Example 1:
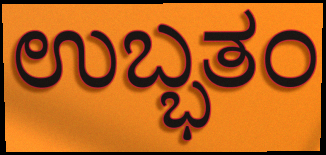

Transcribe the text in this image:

ಉಬ್ಭತಂ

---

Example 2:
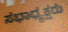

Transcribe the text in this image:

ಸಭಾಧ್ಯಕ್ಷರು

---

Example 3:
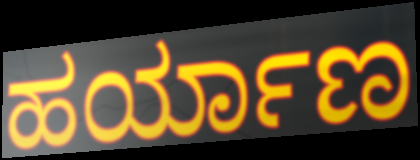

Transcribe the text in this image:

ಹರ್ಯಾಣ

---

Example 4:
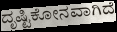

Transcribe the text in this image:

ದೃಷ್ಟಿಕೋನವಾಗಿದೆ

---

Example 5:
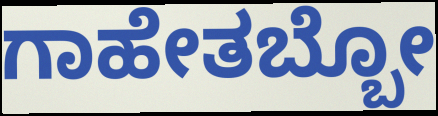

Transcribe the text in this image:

ಗಾಹೇತಬ್ಬೋ